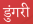
डुंगरी